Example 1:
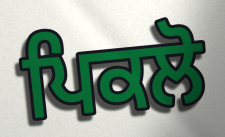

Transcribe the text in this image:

ਪਿਕਲੋ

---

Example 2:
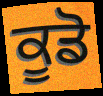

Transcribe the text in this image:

ਕੂਡੋ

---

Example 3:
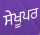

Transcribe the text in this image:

ਸੇਖੂਪਰ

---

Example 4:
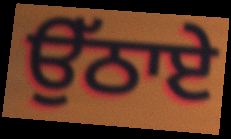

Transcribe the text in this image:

ਉੱਠਾਏ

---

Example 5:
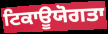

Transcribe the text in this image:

ਟਿਕਾਊਯੋਗਤਾ